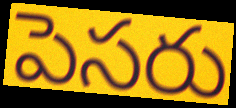
పెసరు